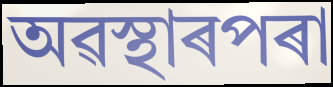
অৱস্থাৰপৰা